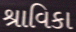
શ્રાવિકા